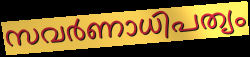
സവർണാധിപത്യം